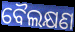
ବୈଲକ୍ଷଣ